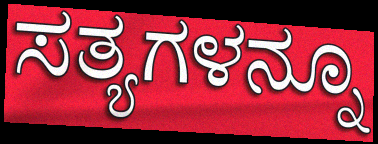
ಸತ್ಯಗಳನ್ನೂ